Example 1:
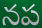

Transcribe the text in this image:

నప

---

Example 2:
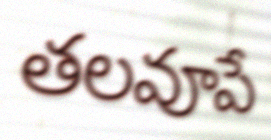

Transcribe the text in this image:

తలవూపే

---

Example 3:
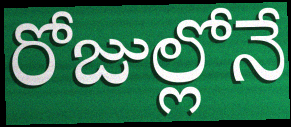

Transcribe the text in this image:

రోజుల్లోనే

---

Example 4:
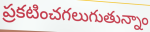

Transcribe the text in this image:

ప్రకటించగలుగుతున్నాం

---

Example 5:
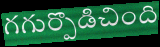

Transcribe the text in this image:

గగుర్పొడిచింది